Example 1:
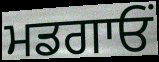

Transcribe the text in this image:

ਮਡਗਾਓਂ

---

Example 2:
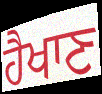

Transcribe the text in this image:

ਹੈਖਾਣ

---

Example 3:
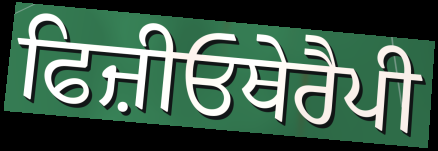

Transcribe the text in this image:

ਫਿਜ਼ੀਓਥੇਰੈਪੀ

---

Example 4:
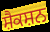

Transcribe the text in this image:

ਸ਼ੈਕਸ਼ਨ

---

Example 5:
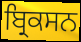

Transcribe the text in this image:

ਬ੍ਰਿਕਸਨ